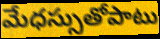
మేధస్సుతోపాటు